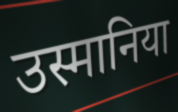
उस्मानिया